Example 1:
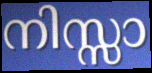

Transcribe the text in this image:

നിസ്സാ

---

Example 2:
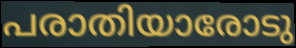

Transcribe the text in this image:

പരാതിയാരോടു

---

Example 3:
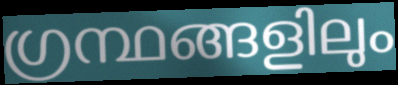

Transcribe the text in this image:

ഗ്രന്ഥങ്ങളിലും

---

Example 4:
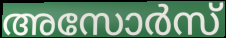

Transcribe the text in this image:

അസോർസ്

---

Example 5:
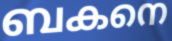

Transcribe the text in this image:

ബകനെ